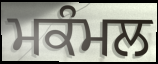
ਮਕੰਮਲ